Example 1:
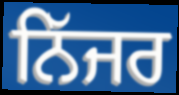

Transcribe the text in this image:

ਨਿੱਜਰ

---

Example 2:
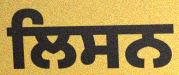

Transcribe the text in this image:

ਲਿਸਨ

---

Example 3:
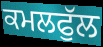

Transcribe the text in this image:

ਕਮਲਫੁੱਲ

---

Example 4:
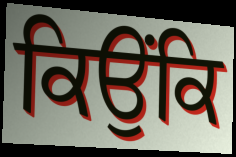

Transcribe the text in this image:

ਕਿਉਂਕਿ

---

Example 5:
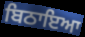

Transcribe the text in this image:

ਬਿਠਾਇਆ